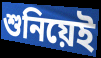
শুনিয়েই